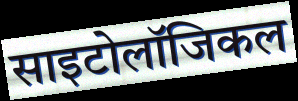
साइटोलॉजिकल